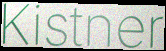
Kistner